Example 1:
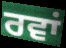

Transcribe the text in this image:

ਰਵਾਂ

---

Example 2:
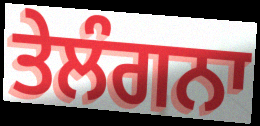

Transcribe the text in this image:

ਤੇਲੰਗਨਾ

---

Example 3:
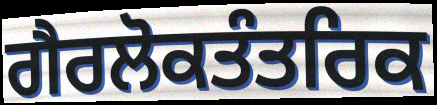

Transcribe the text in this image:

ਗੈਰਲੋਕਤੰਤਰਿਕ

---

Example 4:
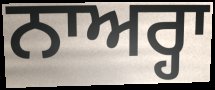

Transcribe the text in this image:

ਨਾਅਰ੍ਹਾ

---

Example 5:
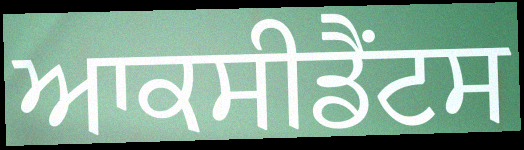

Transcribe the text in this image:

ਆਕਸੀਡੈਂਟਸ